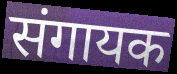
संगायक